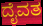
ದೈವತ